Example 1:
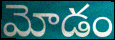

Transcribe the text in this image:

మోడం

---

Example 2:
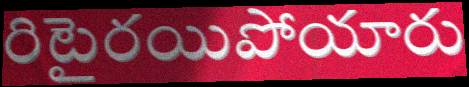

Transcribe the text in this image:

రిటైరయిపోయారు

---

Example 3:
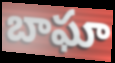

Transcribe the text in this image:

బాఘా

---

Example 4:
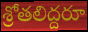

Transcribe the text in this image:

శ్రోతలిద్దరూ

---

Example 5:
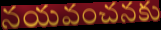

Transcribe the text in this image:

నయవంచనకు